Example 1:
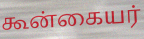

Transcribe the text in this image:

கூன்கையர்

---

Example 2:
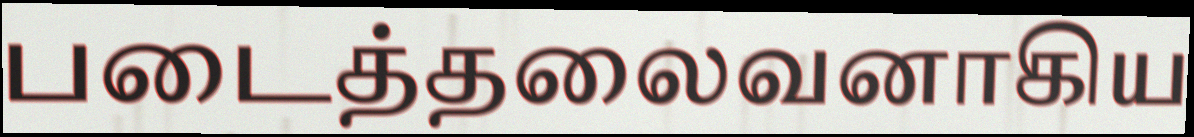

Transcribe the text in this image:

படைத்தலைவனாகிய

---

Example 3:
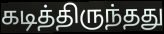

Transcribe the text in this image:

கடித்திருந்தது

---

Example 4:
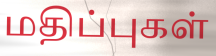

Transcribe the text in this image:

மதிப்புகள்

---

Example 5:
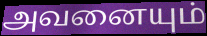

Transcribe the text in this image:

அவனையும்